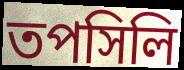
তপসিলি